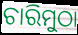
ଚାରିମୁଠା